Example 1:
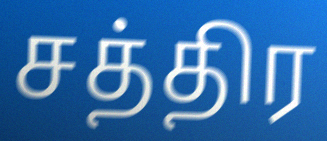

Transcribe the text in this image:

சத்திர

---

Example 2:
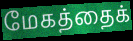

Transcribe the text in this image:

மேகத்தைக்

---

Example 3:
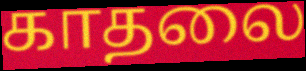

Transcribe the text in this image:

காதலை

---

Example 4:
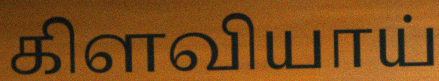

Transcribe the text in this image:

கிளவியாய்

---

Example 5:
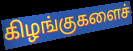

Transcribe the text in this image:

கிழங்குகளைச்